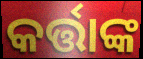
କର୍ତ୍ତାଙ୍କ